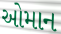
ઓમાન